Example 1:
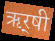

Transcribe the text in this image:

ऋर्षी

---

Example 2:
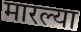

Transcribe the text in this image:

मारल्या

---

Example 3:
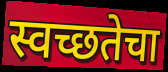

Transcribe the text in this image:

स्वच्छतेचा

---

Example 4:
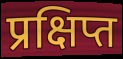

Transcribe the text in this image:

प्रक्षिप्त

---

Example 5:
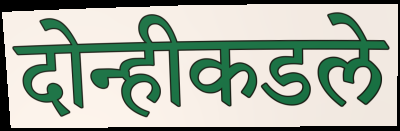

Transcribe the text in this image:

दोन्हीकडले